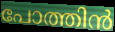
പോത്തിൻ